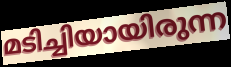
മടിച്ചിയായിരുന്ന